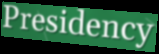
Presidency